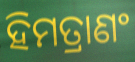
ହିମତ୍ରାଣଂ